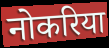
नोकरिया